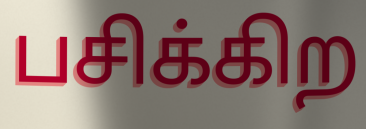
பசிக்கிற